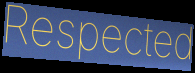
Respected